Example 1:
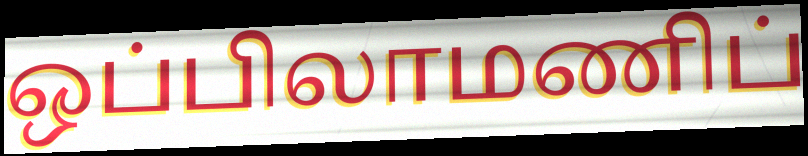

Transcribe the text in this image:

ஒப்பிலாமணிப்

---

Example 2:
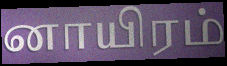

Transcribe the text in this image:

னாயிரம்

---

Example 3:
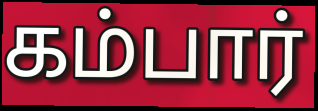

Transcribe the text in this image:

கம்பார்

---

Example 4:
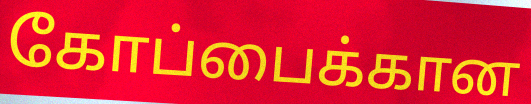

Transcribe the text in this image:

கோப்பைக்கான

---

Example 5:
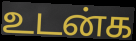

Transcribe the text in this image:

உடன்க